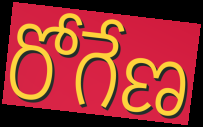
రోగేణ